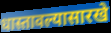
धास्तावल्यासारखे